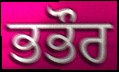
ਭਭੌਰ